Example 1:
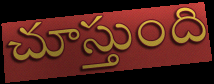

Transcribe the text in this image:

చూస్తుంది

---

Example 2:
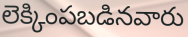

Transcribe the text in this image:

లెక్కింపబడినవారు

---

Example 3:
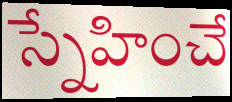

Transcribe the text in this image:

స్నేహించే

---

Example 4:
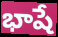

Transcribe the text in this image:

భాషే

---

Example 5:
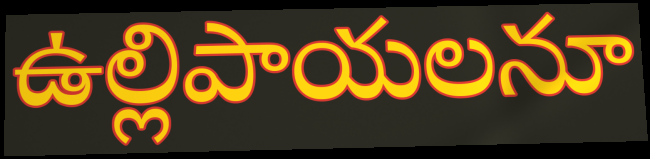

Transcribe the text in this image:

ఉల్లిపాయలనూ